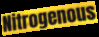
Nitrogenous